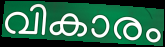
വികാരം